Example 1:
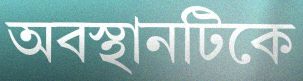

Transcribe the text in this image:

অবস্থানটিকে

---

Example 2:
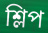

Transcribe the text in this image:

শ্লিপ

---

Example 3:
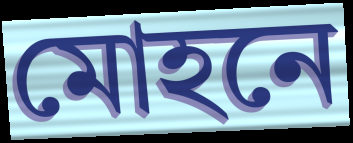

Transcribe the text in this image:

মোহনে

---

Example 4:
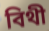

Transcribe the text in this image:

বিথী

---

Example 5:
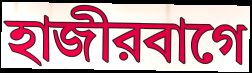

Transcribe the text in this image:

হাজীরবাগে